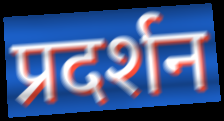
प्रदर्शन